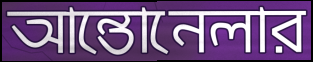
আন্তোনেলার